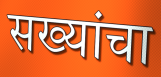
सख्यांचा